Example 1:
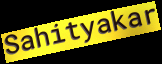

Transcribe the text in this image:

Sahityakar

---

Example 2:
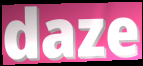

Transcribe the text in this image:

daze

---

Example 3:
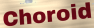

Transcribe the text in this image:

Choroid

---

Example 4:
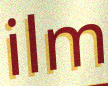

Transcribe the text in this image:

ilm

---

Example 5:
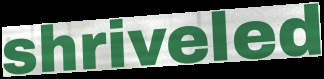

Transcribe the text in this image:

shriveled